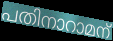
പതിനാറാമന്